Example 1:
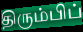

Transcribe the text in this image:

திரும்பிப்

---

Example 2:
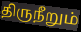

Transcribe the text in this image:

திருநீறும்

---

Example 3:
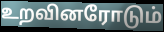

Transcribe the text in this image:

உறவினரோடும்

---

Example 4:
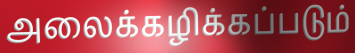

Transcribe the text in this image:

அலைக்கழிக்கப்படும்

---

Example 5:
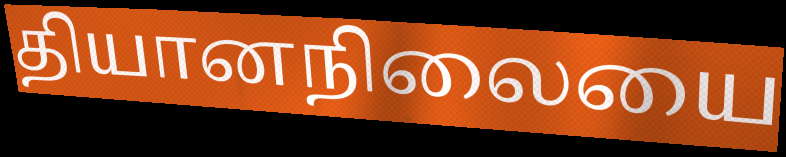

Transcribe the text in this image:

தியானநிலையை